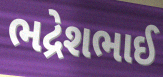
ભદ્રેશભાઈ